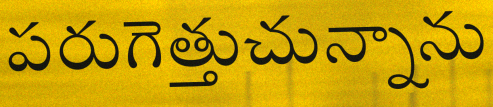
పరుగెత్తుచున్నాను